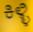
ಕಿಳ್ಳಿ